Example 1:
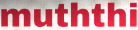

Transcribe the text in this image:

muththi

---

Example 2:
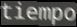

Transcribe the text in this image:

tiempo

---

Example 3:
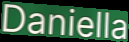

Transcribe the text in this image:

Daniella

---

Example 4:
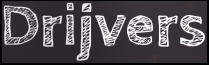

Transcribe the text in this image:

Drijvers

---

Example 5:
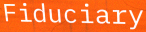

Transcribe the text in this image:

Fiduciary